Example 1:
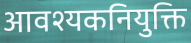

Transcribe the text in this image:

आवश्यकनियुक्ति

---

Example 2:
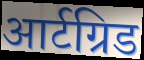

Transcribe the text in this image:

आर्टग्रिड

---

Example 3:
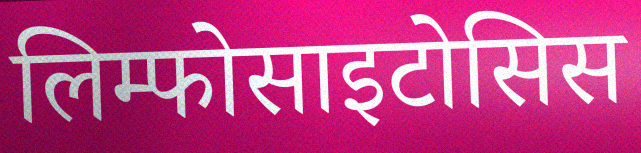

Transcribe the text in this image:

लिम्फोसाइटोसिस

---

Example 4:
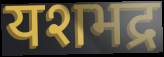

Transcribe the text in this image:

यशभद्र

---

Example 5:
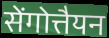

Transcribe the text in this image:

सेंगोत्तैयन